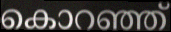
കൊറഞ്ഞ്